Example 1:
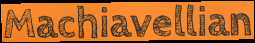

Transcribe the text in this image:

Machiavellian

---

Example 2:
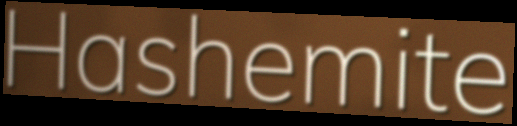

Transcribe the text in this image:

Hashemite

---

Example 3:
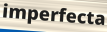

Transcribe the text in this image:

imperfecta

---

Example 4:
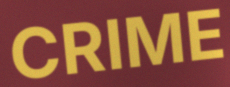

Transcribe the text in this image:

CRIME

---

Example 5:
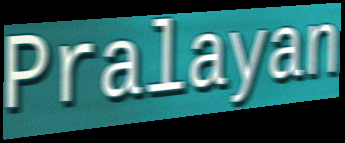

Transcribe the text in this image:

Pralayan